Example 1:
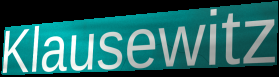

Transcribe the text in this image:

Klausewitz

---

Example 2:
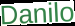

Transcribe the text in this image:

Danilo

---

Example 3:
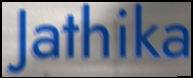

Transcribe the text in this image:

Jathika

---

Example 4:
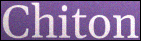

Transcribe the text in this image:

Chiton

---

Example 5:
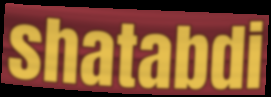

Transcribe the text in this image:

shatabdi